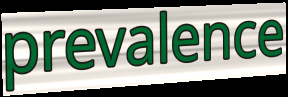
prevalence